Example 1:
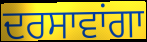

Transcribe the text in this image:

ਦਰਸਾਵਾਂਗਾ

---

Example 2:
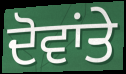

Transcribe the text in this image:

ਦੋਵਾਂਤੇ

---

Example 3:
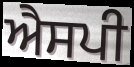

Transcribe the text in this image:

ਐਸਪੀ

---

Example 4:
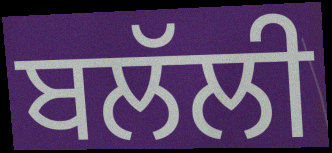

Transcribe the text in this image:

ਬਲੱਲੀ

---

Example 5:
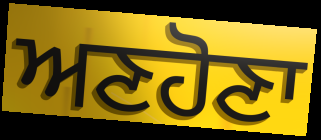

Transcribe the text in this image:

ਅਣਹੋਣਾ